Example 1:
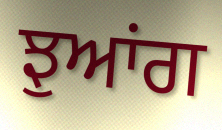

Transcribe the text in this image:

ਝੁਆਂਗ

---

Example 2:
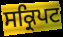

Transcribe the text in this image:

ਸਕ੍ਰਿਪਟ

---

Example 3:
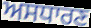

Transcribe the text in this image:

ਅਸਧਾਰਣ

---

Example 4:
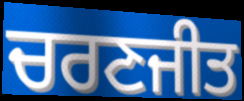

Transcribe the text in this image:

ਚਰਣਜੀਤ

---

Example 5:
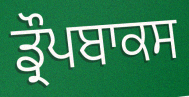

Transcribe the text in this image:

ਡ੍ਰੌਪਬਾਕਸ